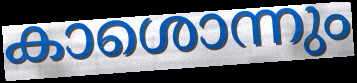
കാശൊന്നും